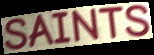
SAINTS